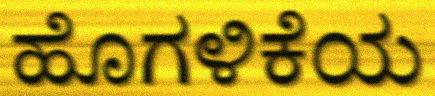
ಹೊಗಳಿಕೆಯ